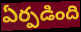
ఏర్పడింది